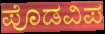
ಪೊಡವಿಪ